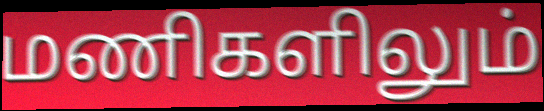
மணிகளிலும்